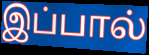
இப்பால்